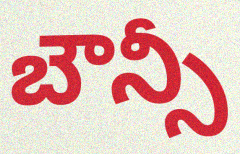
బౌన్సీ